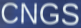
CNGS